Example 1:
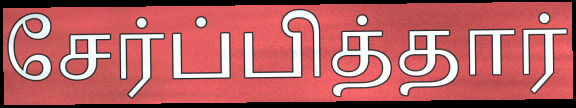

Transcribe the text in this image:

சேர்ப்பித்தார்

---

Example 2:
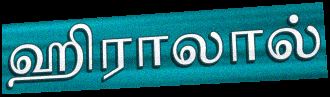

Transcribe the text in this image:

ஹிராலால்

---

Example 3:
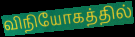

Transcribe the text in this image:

விநியோகத்தில்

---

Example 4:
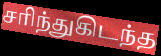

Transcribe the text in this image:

சரிந்துகிடந்த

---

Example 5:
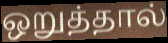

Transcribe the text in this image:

ஒறுத்தால்